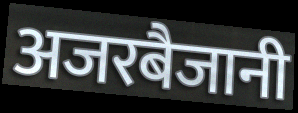
अजरबैजानी